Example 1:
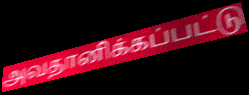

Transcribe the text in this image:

அவதானிக்கப்பட்டு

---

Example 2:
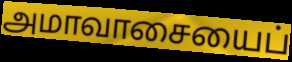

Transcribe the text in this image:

அமாவாசையைப்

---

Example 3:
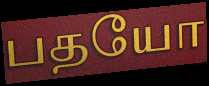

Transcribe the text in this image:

பதயோ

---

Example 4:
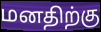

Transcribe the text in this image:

மனதிற்கு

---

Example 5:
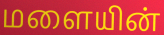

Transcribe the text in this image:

மளையின்